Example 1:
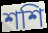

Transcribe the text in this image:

শশি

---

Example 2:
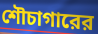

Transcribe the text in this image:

শৌচাগারের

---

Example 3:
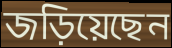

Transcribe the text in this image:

জড়িয়েছেন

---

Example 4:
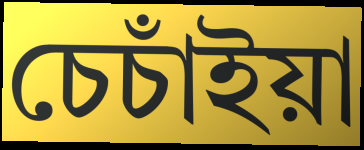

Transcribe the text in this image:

চেচাঁইয়া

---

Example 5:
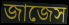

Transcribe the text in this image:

জাজেস